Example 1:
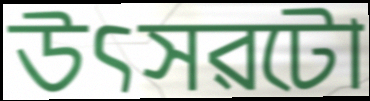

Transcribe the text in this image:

উৎসৱটো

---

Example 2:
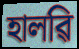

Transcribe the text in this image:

হালৱি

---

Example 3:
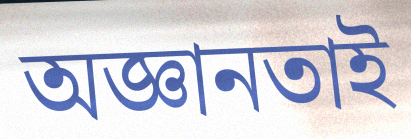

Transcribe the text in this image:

অজ্ঞানতাই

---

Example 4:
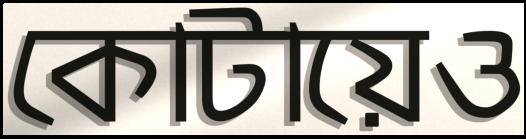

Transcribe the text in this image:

কোটায়েও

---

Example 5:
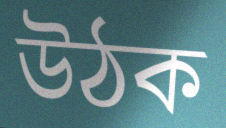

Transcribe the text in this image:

উঠক